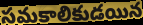
సమకాలికుడయిన